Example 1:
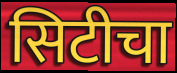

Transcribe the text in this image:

सिटीचा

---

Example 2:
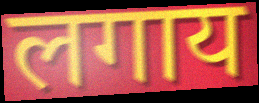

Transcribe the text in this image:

लगाय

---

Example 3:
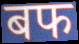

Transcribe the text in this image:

बफ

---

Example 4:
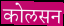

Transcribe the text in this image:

कोलसन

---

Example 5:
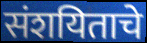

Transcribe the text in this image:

संशयिताचे